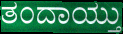
ತಂದಾಯ್ತು